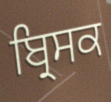
ਬ੍ਰਿਸਕ